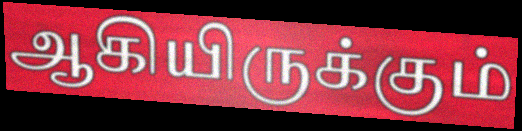
ஆகியிருக்கும்